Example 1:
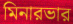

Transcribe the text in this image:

মিনারভার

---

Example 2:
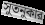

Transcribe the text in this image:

সুতনুকার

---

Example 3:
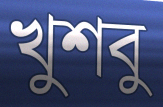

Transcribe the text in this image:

খুশবু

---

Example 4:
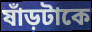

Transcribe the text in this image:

ষাঁড়টাকে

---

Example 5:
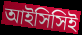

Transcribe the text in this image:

আইসিসিই